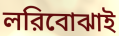
লরিবোঝাই